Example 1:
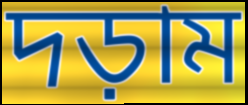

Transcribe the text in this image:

দড়াম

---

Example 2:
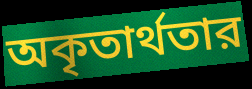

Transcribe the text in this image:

অকৃতার্থতার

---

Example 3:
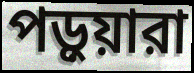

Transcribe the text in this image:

পড়ুয়ারা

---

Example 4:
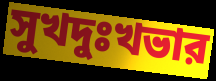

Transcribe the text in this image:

সুখদুঃখভার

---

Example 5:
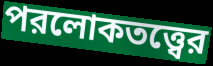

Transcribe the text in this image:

পরলোকতত্ত্বের